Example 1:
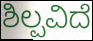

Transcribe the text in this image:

ಶಿಲ್ಪವಿದೆ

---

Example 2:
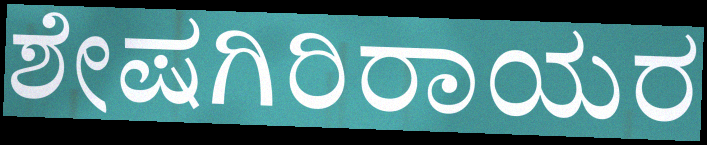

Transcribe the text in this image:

ಶೇಷಗಿರಿರಾಯರ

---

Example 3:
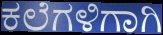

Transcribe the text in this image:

ಕಲೆಗಳಿಗಾಗಿ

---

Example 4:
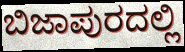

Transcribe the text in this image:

ಬಿಜಾಪುರದಲ್ಲಿ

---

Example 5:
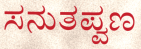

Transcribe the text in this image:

ಸನುತಪ್ವಣ